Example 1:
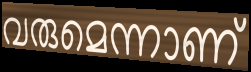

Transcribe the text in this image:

വരുമെന്നാണ്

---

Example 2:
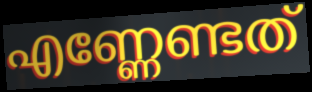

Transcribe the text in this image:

എണ്ണേണ്ടത്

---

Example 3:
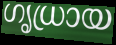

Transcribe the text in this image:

ഗൃധ്രായ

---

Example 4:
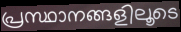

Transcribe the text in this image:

പ്രസ്ഥാനങ്ങളിലൂടെ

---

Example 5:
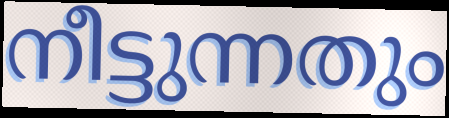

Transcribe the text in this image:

നീട്ടുന്നതും